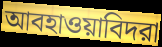
আবহাওয়াবিদরা